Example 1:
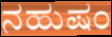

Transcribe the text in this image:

ನಹುಷಂ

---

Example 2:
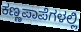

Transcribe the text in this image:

ಕಣ್ಣಪಾಪೆಗಳಲ್ಲಿ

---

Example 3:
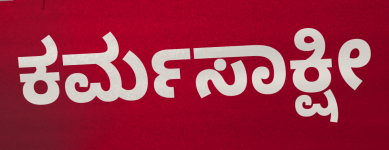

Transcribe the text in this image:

ಕರ್ಮಸಾಕ್ಷೀ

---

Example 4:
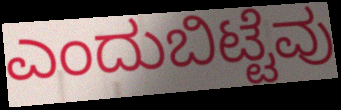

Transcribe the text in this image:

ಎಂದುಬಿಟ್ಟೆವು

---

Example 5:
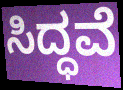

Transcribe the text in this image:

ಸಿದ್ಧವೆ